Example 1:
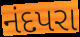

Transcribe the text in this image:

નંદપરા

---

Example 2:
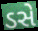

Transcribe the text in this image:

ડસે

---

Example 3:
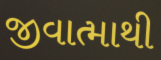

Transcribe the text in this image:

જીવાત્માથી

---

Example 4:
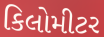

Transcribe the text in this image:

કિલોમીટર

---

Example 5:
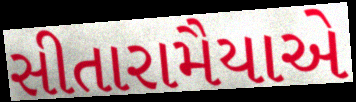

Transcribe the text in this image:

સીતારામૈયાએ